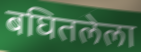
बघितलेला